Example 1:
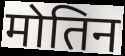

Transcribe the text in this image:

मोतिन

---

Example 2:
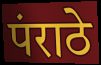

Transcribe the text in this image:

पंराठे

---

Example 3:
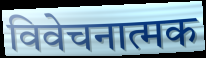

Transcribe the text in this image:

विवेचनात्मक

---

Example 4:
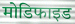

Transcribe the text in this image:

मोडिफाइड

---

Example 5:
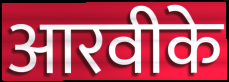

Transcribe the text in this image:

आरवीके